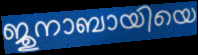
ജുനാബായിയെ